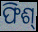
ଫିଶ୍